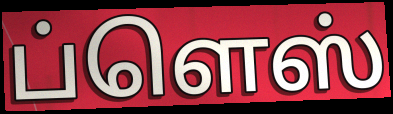
ப்ளெஸ்